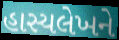
હાસ્યલેખને